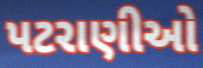
પટરાણીઓ